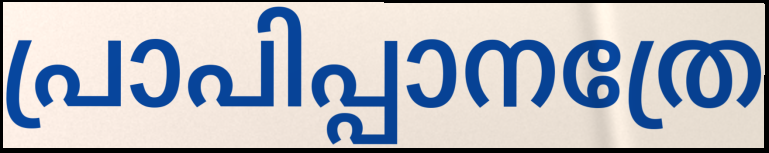
പ്രാപിപ്പാനത്രേ